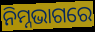
ନିମ୍ନଭାଗରେ